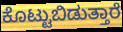
ಕೊಟ್ಟುಬಿಡುತ್ತಾರೆ